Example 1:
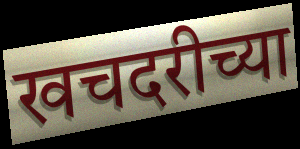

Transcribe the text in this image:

खचदरीच्या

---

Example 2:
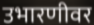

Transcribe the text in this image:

उभारणीवर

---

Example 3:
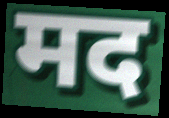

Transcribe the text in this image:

मद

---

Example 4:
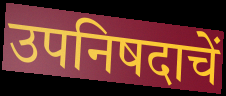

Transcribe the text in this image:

उपनिषदाचें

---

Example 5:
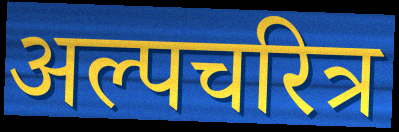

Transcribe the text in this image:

अल्पचरित्र